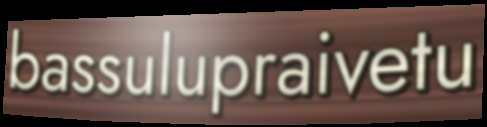
bassulupraivetu